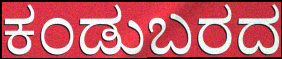
ಕಂಡುಬರದ